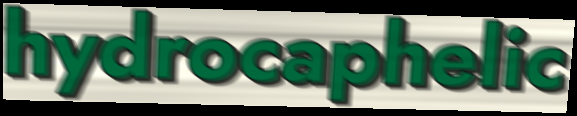
hydrocaphelic